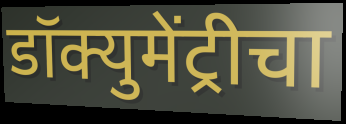
डॉक्युमेंट्रीचा